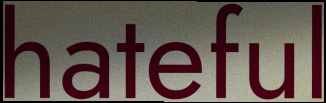
hateful